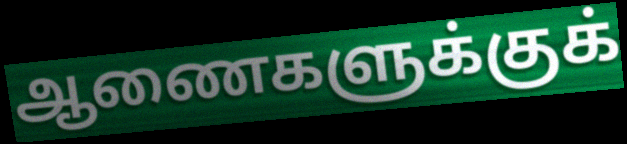
ஆணைகளுக்குக்